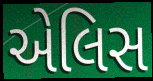
એલિસ